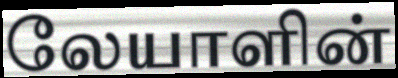
லேயாளின்